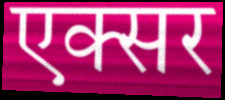
एक्सर